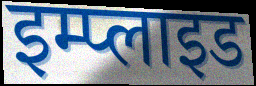
इम्प्लाइड